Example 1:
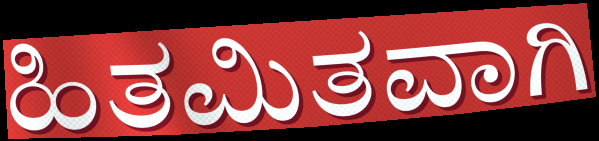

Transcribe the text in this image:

ಹಿತಮಿತವಾಗಿ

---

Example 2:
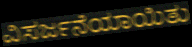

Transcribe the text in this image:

ವಿಸರ್ಜನೆಯಾಯಿತು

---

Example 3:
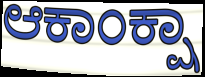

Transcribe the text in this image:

ಆಕಾಂಕ್ಷಾ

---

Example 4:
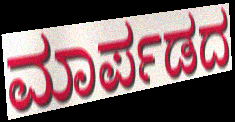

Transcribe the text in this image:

ಮಾರ್ಪಡದ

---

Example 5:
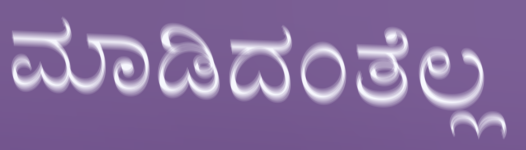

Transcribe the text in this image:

ಮಾಡಿದಂತೆಲ್ಲ